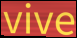
vive